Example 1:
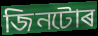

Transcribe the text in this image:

জিনটোৰ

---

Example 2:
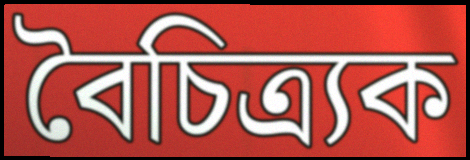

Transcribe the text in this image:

বৈচিত্ৰ্যক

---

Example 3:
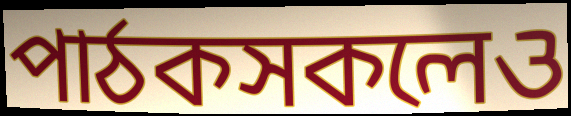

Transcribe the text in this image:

পাঠকসকলেও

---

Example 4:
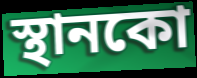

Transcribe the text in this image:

স্থানকো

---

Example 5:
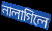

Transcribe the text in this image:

নালাগিলে